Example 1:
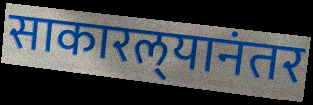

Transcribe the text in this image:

साकारल्यानंतर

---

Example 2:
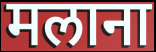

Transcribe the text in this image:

मलाना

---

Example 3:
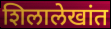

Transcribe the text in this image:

शिलालेखांत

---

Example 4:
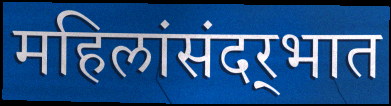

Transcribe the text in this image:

महिलांसंदर्भात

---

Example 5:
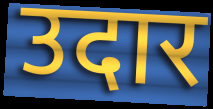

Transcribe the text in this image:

उदार